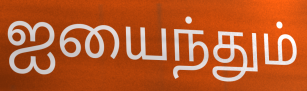
ஐயைந்தும்